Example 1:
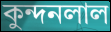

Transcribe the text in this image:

কুন্দনলাল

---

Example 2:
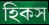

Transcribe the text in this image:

হিকস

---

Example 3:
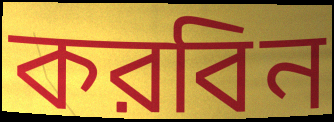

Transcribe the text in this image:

করবিন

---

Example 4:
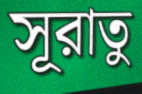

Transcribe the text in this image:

সূরাতু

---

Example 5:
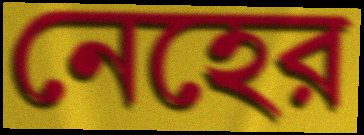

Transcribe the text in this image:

নেহের